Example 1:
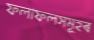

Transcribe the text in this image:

ফলাফলসমূহৰ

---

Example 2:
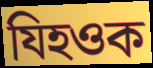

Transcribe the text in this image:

যিহওক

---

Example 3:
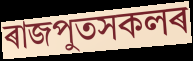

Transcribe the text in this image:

ৰাজপুতসকলৰ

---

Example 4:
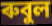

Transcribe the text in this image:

ৰুবুল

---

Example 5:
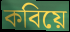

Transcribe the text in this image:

কবিয়ে